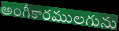
అంగీకారములగును